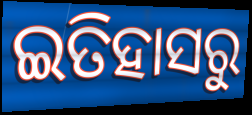
ଇତିହାସରୁ